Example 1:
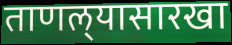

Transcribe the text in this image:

ताणल्यासारखा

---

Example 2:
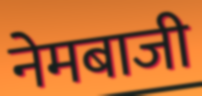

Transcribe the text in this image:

नेमबाजी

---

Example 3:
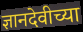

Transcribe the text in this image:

ज्ञानदेवीच्या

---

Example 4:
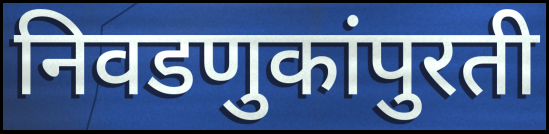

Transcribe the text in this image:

निवडणुकांपुरती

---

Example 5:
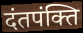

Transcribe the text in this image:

दंतपंक्ति